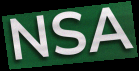
NSA